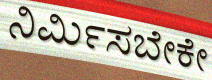
ನಿರ್ಮಿಸಬೇಕೇ